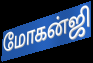
மோகன்ஜி